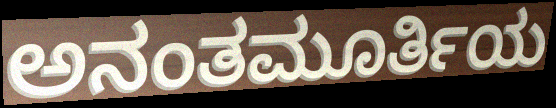
ಅನಂತಮೂರ್ತಿಯ